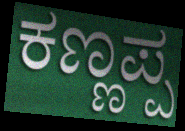
ಕಣ್ಣಪ್ಪ